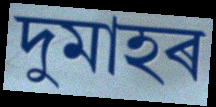
দুমাহৰ